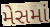
મેસમાં